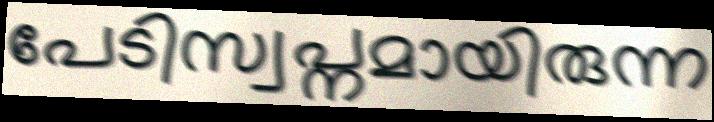
പേടിസ്വപ്നമായിരുന്ന